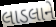
લાડલાને